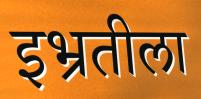
इभ्रतीला